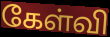
கேள்வி